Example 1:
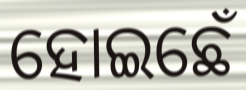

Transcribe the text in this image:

ହୋଇଛେଁ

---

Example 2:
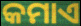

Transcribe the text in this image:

କମାଏ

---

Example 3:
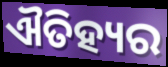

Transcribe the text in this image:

ଐତିହ୍ୟର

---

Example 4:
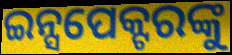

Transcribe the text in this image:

ଇନ୍ସପେକ୍ଟରଙ୍କୁ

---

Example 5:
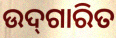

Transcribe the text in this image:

ଉଦ୍‌ଗାରିତ